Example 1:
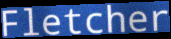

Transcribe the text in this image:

Fletcher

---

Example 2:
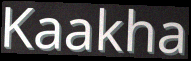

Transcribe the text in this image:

Kaakha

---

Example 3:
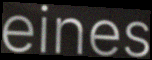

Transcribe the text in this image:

eines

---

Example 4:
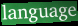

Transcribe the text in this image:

language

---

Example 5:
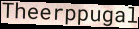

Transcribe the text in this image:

Theerppugal